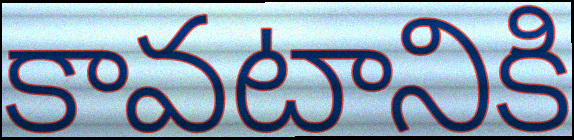
కావటానికి